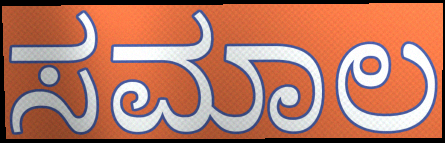
ಸಮಾಲ